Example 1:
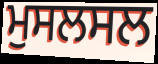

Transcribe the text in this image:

ਮੁਸਲਸਲ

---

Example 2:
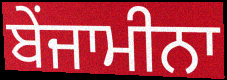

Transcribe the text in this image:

ਬੇਂਜਾਮੀਨਾ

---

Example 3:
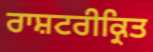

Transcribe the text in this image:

ਰਾਸ਼ਟਰੀਕ੍ਰਿਤ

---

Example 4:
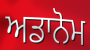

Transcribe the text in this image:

ਅਡਾਨੋਮ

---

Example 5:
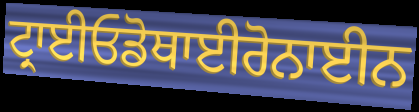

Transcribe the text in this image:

ਟ੍ਰਾਈਓਡੋਥਾਈਰੋਨਾਈਨ